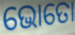
ଭୋତୋ